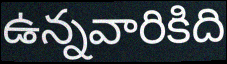
ఉన్నవారికిది